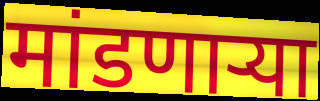
मांडणाऱ्या